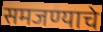
समजण्याचे